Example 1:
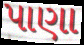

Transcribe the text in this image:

પાણા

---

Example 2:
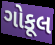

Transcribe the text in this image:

ગોકૂલ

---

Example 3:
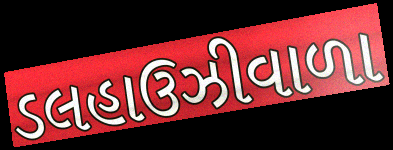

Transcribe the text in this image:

ડલહાઉઝીવાળા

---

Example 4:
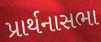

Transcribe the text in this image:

પ્રાર્થનાસભા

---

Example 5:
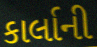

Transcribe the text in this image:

કાર્લાની